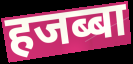
हजब्बा